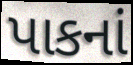
પાકનાં